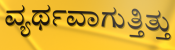
ವ್ಯರ್ಥವಾಗುತ್ತಿತ್ತು